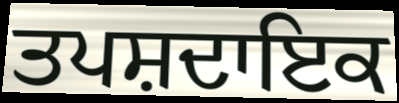
ਤਪਸ਼ਦਾਇਕ